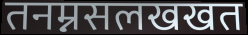
तनम्नसलखखत